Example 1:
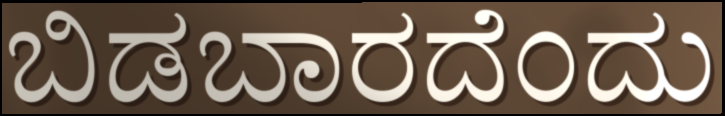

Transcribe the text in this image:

ಬಿಡಬಾರದೆಂದು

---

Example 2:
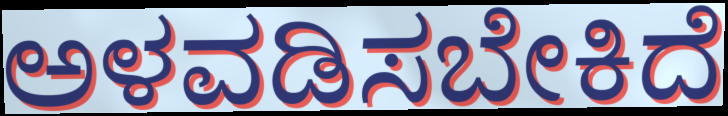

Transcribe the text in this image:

ಅಳವಡಿಸಬೇಕಿದೆ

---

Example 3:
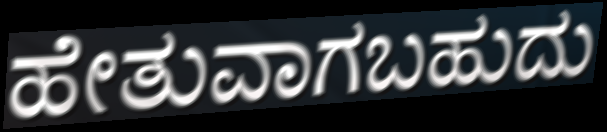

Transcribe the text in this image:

ಹೇತುವಾಗಬಹುದು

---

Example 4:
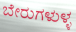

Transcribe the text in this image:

ಬೇರುಗಳುಳ್ಳ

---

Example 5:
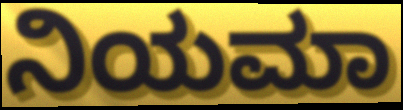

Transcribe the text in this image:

ನಿಯಮಾ